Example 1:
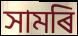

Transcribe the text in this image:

সামৰি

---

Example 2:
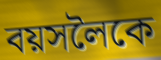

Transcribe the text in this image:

বয়সলৈকে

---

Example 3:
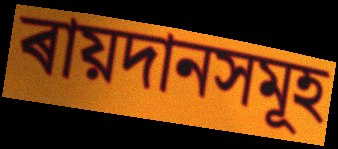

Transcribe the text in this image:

ৰায়দানসমূহ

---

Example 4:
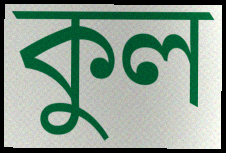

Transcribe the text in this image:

কুল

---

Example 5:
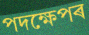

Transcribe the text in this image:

পদক্ষেপৰ